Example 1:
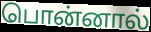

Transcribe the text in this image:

பொன்னால்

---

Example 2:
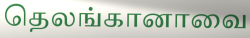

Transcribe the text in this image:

தெலங்கானாவை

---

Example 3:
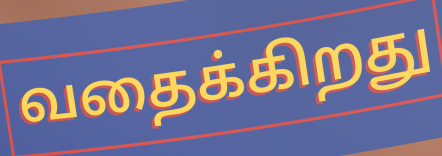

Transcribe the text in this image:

வதைக்கிறது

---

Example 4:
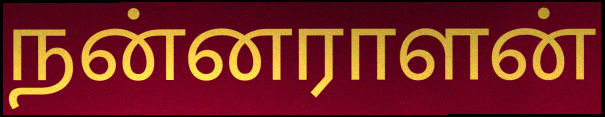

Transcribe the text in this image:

நன்னராளன்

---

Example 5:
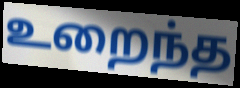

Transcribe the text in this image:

உறைந்த